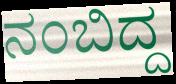
ನಂಬಿದ್ದ